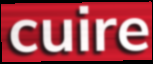
cuire